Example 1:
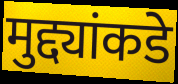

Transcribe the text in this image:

मुद्द्यांकडे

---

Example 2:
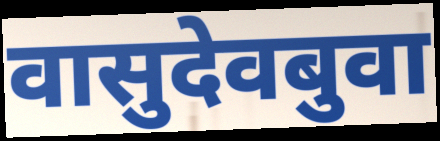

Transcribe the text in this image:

वासुदेवबुवा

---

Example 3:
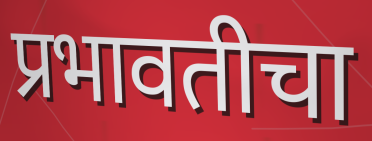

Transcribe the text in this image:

प्रभावतीचा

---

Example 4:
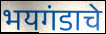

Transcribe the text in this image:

भयगंडाचे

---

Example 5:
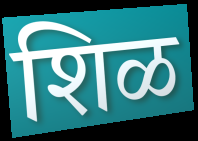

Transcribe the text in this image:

शिळ